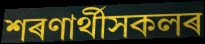
শৰণাৰ্থীসকলৰ